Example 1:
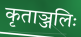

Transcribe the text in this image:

कृताञ्जलिः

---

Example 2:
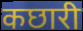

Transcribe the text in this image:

कछारी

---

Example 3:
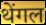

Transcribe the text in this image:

थेंगल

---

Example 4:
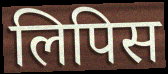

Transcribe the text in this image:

लिपिस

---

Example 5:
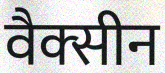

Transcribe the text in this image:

वैक्‍सीन